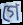
গে